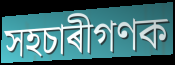
সহচাৰীগণক